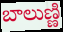
బాలుణ్ణి